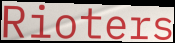
Rioters